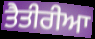
ਤੈਤੀਰੀਆ